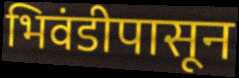
भिवंडीपासून